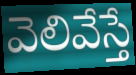
వెలివేస్తే